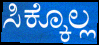
ಸಿಕ್ಕೊಲ್ಲ